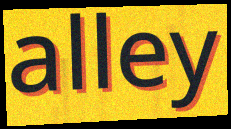
alley